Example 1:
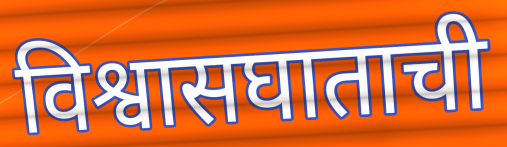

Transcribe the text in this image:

विश्वासघाताची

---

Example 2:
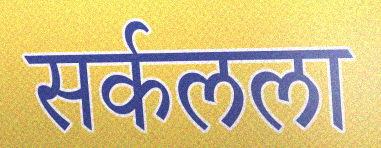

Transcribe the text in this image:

सर्कलला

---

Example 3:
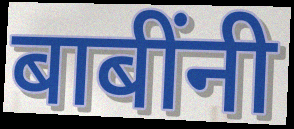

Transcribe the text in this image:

बाबींनी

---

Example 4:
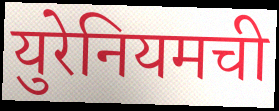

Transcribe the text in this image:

युरेनियमची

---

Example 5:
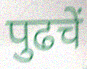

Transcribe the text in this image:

पुढचें